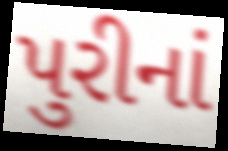
પુરીનાં